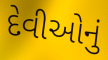
દેવીઓનું